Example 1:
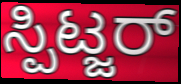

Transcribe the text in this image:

ಸ್ಪಿಟ್ಜರ್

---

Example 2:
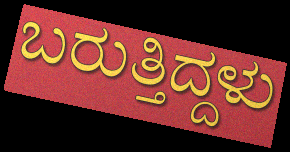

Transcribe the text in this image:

ಬರುತ್ತಿದ್ದಳು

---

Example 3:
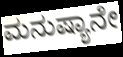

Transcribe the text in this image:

ಮನುಷ್ಯಾನೇ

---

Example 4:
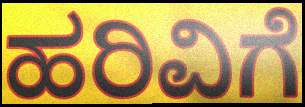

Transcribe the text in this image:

ಹರಿವಿಗೆ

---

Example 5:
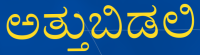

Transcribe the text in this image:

ಅತ್ತುಬಿಡಲಿ